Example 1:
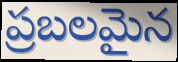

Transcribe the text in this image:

ప్రబలమైన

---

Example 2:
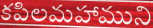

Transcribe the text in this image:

కపిలమహాముని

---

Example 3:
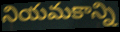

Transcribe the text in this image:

నియమకాన్ని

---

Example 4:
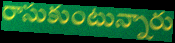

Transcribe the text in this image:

రాసుకుంటున్నారు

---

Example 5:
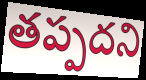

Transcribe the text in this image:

తప్పదని